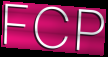
FCP